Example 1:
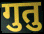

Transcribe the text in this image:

गुतु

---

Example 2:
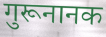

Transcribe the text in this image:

गुरूनानक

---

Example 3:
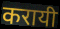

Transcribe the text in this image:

करायी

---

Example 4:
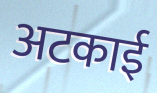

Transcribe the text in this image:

अटकाई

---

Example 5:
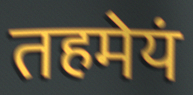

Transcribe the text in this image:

तहमेयं